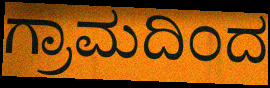
ಗ್ರಾಮದಿಂದ